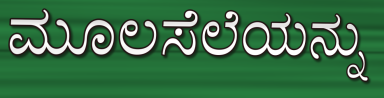
ಮೂಲಸೆಲೆಯನ್ನು